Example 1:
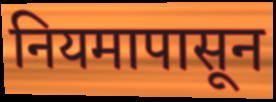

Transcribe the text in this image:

नियमापासून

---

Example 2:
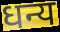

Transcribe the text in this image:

धन्य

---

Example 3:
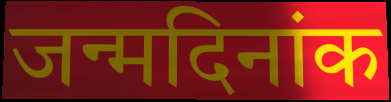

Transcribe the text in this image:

जन्मदिनांक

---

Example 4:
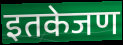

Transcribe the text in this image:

इतकेजण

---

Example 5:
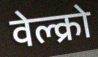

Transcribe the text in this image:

वेल्क्रो